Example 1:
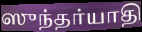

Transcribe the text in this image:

ஸுந்தர்யாதி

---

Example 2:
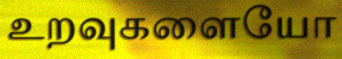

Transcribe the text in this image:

உறவுகளையோ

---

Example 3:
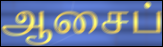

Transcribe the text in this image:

ஆசைப்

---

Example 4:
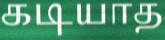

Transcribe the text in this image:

கடியாத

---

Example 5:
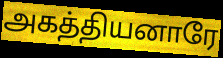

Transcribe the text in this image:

அகத்தியனாரே